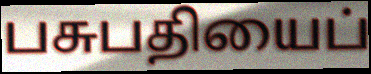
பசுபதியைப்